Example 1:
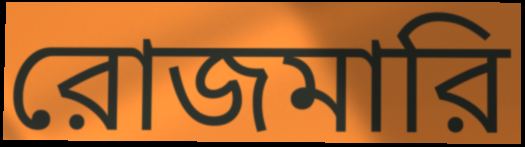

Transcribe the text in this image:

রোজমারি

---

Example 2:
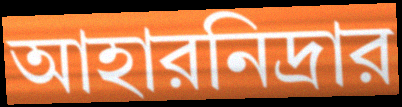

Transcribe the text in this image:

আহারনিদ্রার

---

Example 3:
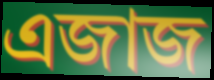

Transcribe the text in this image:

এজাজ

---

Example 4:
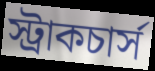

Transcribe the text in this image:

স্ট্রাকচার্স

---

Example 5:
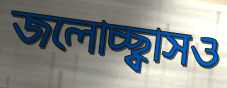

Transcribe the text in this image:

জলোচ্ছ্বাসও